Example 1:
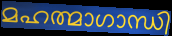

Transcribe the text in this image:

മഹത്മാഗാന്ധി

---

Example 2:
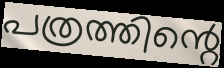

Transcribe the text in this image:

പത്രത്തിന്റെ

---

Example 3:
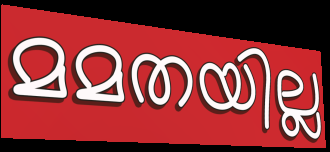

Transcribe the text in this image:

മമതയില്ല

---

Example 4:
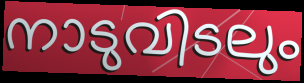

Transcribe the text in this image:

നാടുവിടലും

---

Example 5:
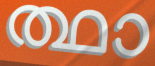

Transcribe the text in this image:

ത്ഥാ